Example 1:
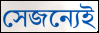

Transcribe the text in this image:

সেজন্যেই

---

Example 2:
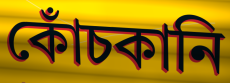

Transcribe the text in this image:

কোঁচকানি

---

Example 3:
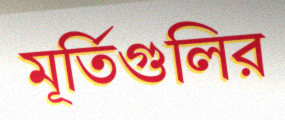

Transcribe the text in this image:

মূর্তিগুলির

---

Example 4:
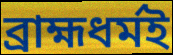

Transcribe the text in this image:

ব্রাহ্মধর্মই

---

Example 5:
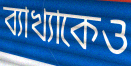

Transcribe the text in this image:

ব্যাখ্যাকেও